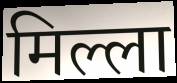
मिल्ला